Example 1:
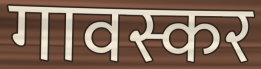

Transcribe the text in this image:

गावस्‍कर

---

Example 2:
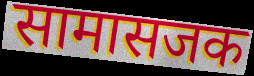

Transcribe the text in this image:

सामासजक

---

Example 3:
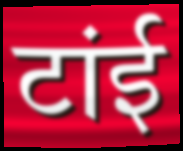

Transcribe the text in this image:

टांई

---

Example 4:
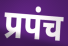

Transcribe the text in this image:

प्रपंच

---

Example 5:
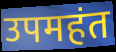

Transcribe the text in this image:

उपमहंत